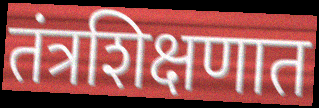
तंत्रशिक्षणात